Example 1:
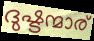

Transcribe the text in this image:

ദുഷ്ടന്മാര്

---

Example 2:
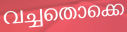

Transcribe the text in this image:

വച്ചതൊക്കെ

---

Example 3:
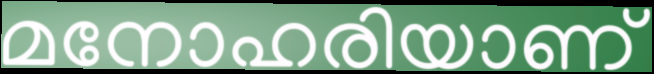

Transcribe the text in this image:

മനോഹരിയാണ്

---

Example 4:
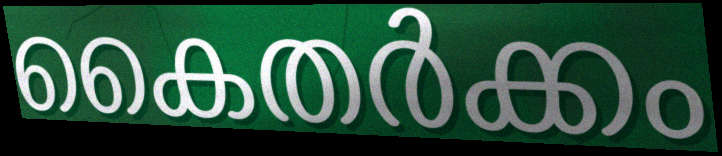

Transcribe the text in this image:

കൈതർക്കം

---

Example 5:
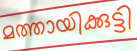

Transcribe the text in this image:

മത്തായിക്കുട്ടി